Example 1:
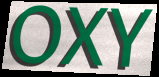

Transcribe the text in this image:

OXY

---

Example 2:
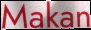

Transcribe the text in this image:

Makan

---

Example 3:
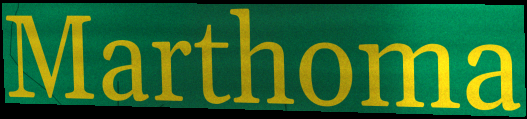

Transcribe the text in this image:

Marthoma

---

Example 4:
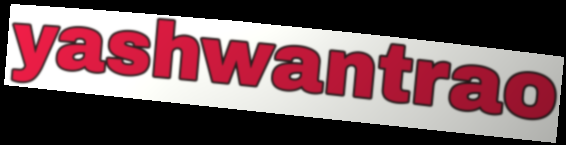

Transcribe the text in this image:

yashwantrao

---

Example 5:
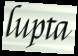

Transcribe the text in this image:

lupta